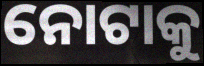
ନୋଟାକୁ